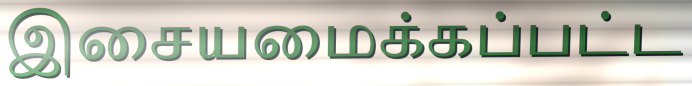
இசையமைக்கப்பட்ட